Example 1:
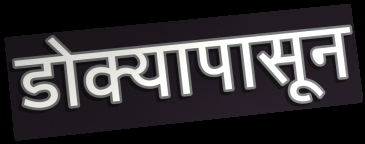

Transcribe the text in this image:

डोक्यापासून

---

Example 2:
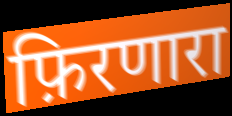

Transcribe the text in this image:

फ़िरणारा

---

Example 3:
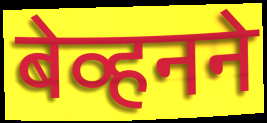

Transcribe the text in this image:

बेव्हनने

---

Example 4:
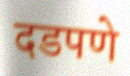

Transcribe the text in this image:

दडपणे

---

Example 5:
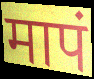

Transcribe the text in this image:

मापं